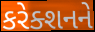
કરેક્શનને